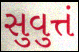
સુવુત્તં